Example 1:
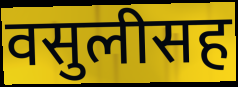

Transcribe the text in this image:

वसुलीसह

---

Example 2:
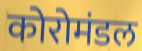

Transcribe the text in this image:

कोरोमंडल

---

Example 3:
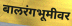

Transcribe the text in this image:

बालरंगभूमीवर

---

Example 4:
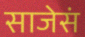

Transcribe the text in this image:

साजेसं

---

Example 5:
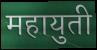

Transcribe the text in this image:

महायुती